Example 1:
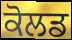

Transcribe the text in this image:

ਕੋਲਡ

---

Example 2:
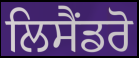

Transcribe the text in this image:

ਲਿਸੈਂਡਰੋ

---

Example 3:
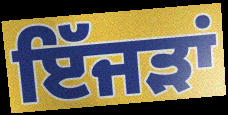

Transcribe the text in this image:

ਇੱਜੜਾਂ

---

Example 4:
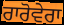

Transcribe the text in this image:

ਰਾਰੋਵੇਰਾ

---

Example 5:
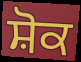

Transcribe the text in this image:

ਸ਼ੋਕ